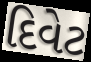
દિવેટ